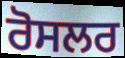
ਰੋਸਲਰ